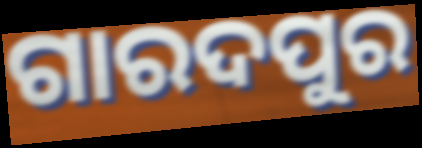
ଗାରଦପୁର